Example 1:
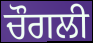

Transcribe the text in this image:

ਚੌਗਲੀ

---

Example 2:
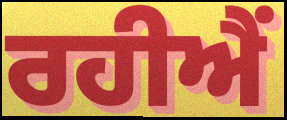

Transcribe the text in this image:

ਰਹੀਐਂ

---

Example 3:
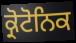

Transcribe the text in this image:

ਕ੍ਰੋਟੋਨਿਕ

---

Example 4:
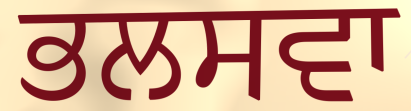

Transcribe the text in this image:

ਭਲਸਵਾ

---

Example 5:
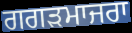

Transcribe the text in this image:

ਗਗੜਮਾਜਰਾ